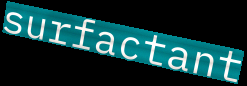
surfactant